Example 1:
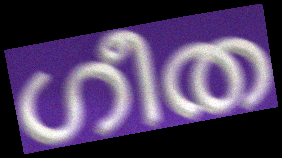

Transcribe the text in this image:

ഗീത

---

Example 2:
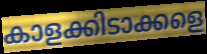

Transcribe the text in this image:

കാളക്കിടാക്കളെ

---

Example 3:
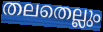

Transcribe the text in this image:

തലതെല്ലും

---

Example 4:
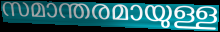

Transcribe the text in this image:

സമാന്തരമായുള്ള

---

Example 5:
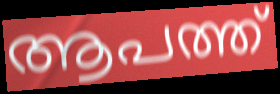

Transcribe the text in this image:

ആപത്ത്